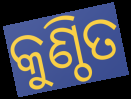
କୁଣ୍ଠିତ